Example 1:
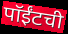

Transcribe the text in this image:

पॉईंटची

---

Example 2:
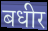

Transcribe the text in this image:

बधीर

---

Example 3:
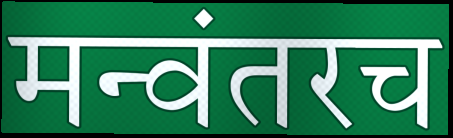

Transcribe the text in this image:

मन्वंतरच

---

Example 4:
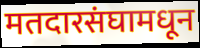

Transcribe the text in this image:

मतदारसंघामधून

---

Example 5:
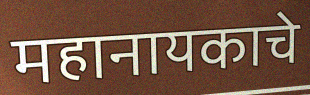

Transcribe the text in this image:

महानायकाचे